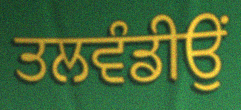
ਤਲਵੰਡੀਉਂ